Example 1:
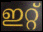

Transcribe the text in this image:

ഇറ്റ്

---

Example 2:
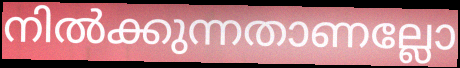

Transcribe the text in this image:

നിൽക്കുന്നതാണല്ലോ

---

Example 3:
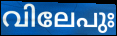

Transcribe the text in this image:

വിലേപുഃ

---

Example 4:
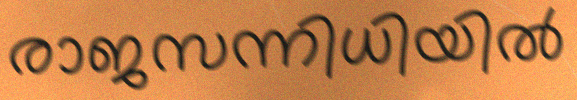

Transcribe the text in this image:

രാജസന്നിധിയിൽ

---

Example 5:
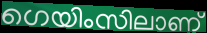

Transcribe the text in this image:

ഗെയിംസിലാണ്